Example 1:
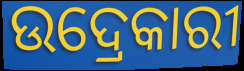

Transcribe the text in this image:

ଉଦ୍ରେକାରୀ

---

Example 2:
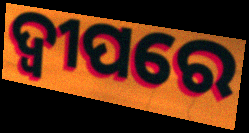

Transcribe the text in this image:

ଦ୍ୱୀପରେ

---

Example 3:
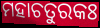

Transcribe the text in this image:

ମହାଚତୁରକଃ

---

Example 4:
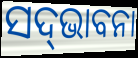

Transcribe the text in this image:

ସଦ୍‌ଭାବନା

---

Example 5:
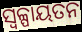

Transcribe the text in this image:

ସ୍ୱଳ୍ପାୟତନ